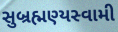
સુબ્રહ્મણ્યસ્વામી